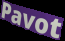
Pavot